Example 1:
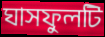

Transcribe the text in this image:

ঘাসফুলটি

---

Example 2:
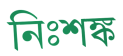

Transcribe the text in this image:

নিঃশঙ্ক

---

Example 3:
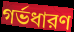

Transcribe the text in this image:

গর্ভধারণ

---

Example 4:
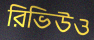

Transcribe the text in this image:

রিভিউও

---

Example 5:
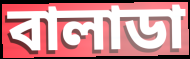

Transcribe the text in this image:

বালাডা